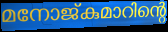
മനോജ്കുമാറിന്റെ